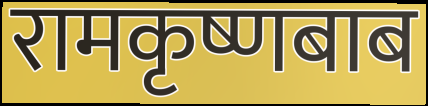
रामकृष्णबाब